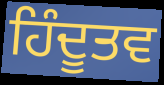
ਹਿੰਦੂਤਵ